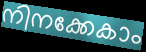
നിനക്കേകാം